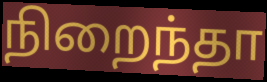
நிறைந்தா